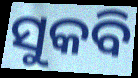
ସୁକବି